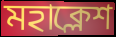
মহাক্লেশ